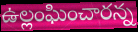
ఉల్లంఘించారన్న